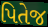
પિતેજ